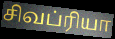
சிவப்ரியா